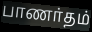
பாணர்தம்